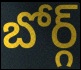
బోర్గ్